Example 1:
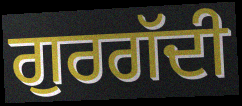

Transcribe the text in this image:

ਗੁਰਗੱਦੀ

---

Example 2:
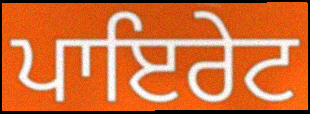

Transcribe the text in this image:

ਪਾਇਰੇਟ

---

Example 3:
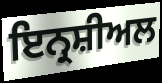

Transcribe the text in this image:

ਇਨ੍ਰਸ਼ੀਅਲ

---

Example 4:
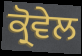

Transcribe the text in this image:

ਕ੍ਰੋਵੇਲ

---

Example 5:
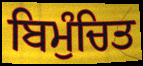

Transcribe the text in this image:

ਬਿਮੁੰਚਿਤ